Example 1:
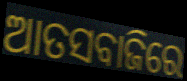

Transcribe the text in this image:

ଆତସବାଜିରେ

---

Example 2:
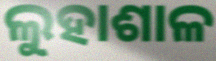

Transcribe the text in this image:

ଲୁହାଶାଳ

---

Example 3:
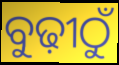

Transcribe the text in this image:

ବୁଢ଼ୀଠୁଁ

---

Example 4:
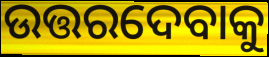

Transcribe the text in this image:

ଉତ୍ତରଦେବାକୁ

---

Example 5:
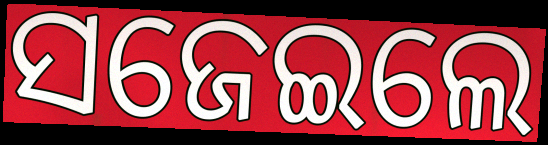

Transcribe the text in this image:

ସଜେଇଲେ